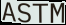
ASTM